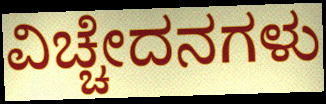
ವಿಚ್ಚೇದನಗಳು